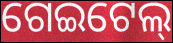
ଗେଇଟେଲ୍